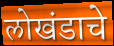
लोखंडाचे